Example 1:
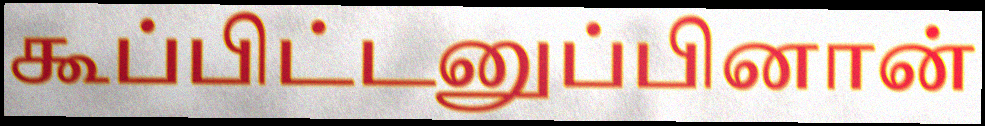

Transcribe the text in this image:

கூப்பிட்டனுப்பினான்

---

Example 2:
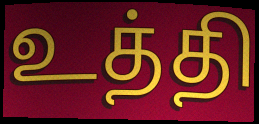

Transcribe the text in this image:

உத்தி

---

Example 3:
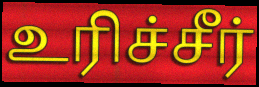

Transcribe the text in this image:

உரிச்சீர்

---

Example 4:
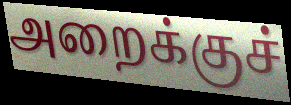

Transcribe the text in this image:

அறைக்குச்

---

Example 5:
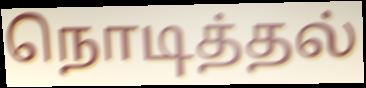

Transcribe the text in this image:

நொடித்தல்